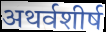
अथर्वशीर्ष